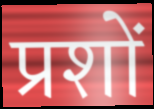
प्रशों